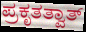
ಪ್ರಕೃತತ್ವಾತ್